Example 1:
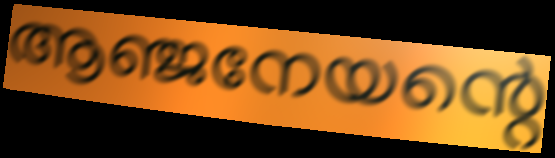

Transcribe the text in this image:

ആഞ്ജനേയന്റെ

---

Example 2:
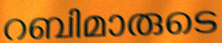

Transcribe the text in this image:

റബിമാരുടെ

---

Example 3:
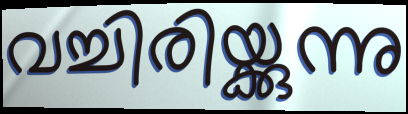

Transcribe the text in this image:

വച്ചിരിയ്ക്കുന്നു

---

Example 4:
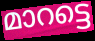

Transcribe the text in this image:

മാറട്ടെ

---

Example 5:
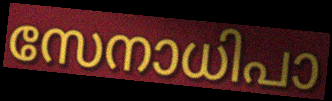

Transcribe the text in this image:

സേനാധിപാ